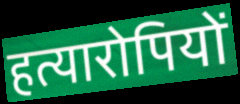
हत्यारोपियों